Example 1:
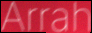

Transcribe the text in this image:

Arrah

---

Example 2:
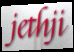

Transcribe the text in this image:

jethji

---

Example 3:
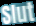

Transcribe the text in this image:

Slut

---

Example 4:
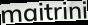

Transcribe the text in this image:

maitrini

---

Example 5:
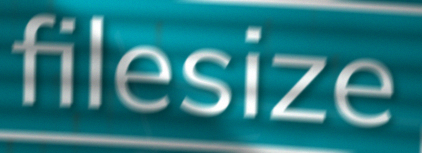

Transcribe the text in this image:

filesize